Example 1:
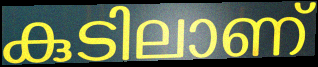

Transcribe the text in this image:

കുടിലാണ്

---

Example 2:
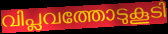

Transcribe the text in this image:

വിപ്ലവത്തോടുകൂടി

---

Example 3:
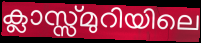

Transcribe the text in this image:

ക്ലാസ്സ്മുറിയിലെ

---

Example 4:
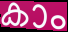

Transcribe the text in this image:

കാം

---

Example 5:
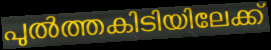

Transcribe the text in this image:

പുൽത്തകിടിയിലേക്ക്